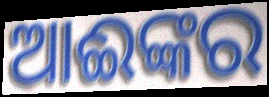
ଆଈଙ୍କର